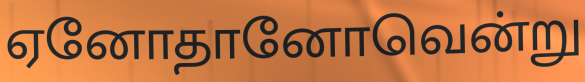
ஏனோதானோவென்று